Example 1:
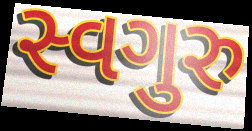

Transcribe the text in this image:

સ્વગુરુ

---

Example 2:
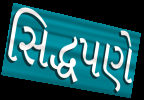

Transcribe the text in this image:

સિદ્ધપણે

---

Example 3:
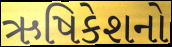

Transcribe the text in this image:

ઋષિકેશનો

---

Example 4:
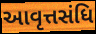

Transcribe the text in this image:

આવૃત્તસંધિ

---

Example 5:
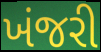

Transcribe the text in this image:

ખંજરી